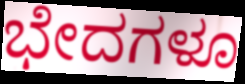
ಭೇದಗಳೂ